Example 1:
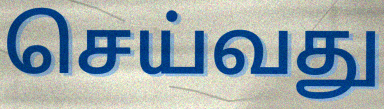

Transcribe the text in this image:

செய்வது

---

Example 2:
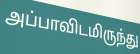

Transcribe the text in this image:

அப்பாவிடமிருந்து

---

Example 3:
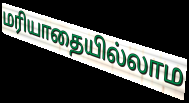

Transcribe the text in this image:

மரியாதையில்லாம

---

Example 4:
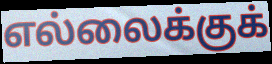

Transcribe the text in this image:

எல்லைக்குக்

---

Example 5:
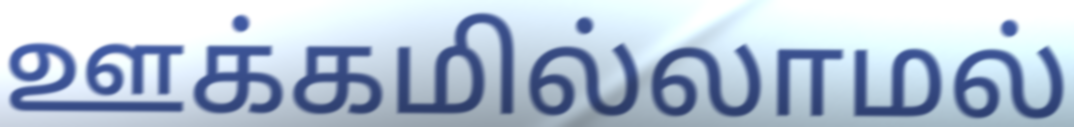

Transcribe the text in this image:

ஊக்கமில்லாமல்